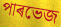
পাৰভেজ